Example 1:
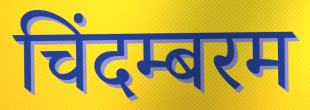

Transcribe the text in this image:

चिंदम्बरम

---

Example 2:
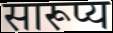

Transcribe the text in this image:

सारूप्य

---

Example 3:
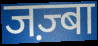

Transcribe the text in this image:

जज़्बा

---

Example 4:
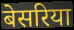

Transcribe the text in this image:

बेसरिया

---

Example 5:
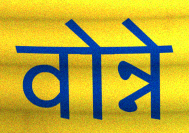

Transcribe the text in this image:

वोन्ने